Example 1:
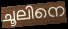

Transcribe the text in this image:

ചൂലിനെ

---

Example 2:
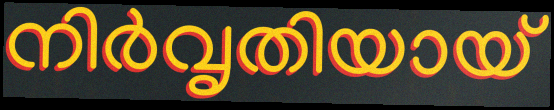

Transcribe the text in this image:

നിർവൃതിയായ്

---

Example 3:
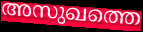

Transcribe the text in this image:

അസുഖത്തെ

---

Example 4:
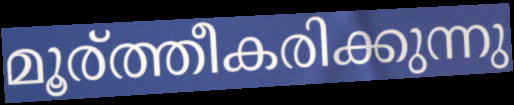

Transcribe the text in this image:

മൂര്ത്തീകരിക്കുന്നു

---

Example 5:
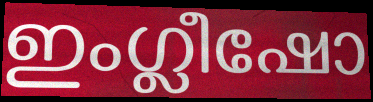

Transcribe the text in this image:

ഇംഗ്ലീഷോ